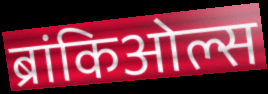
ब्रांकिओल्स